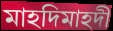
মাহদিমাহদী